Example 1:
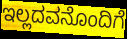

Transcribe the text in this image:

ಇಲ್ಲದವನೊಂದಿಗೆ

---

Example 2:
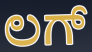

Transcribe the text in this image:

ಲಗ್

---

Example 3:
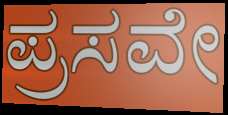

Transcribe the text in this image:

ಪ್ರಸವೇ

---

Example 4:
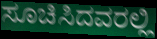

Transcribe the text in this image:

ಸೂಚಿಸಿದವರಲ್ಲಿ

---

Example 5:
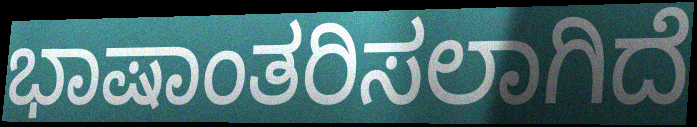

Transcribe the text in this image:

ಭಾಷಾಂತರಿಸಲಾಗಿದೆ